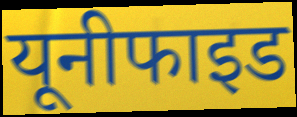
यूनीफाइड